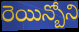
రెయిన్బోని